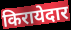
किरायेदार